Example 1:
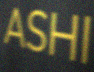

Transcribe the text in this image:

ASHI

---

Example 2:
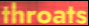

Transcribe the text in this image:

throats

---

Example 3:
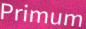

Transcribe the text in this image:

Primum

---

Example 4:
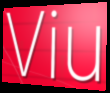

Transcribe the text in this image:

Viu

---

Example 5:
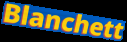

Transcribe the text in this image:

Blanchett